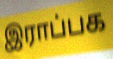
இராப்பக